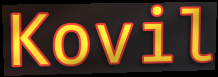
Kovil